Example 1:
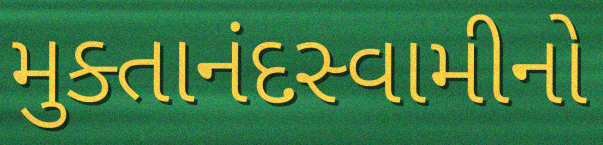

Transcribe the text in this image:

મુક્તાનંદસ્વામીનો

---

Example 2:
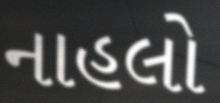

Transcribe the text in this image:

નાહલો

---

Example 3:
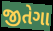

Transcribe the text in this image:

જીતેગા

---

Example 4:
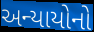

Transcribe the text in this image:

અન્યાયોનો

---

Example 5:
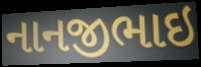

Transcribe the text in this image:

નાનજીભાઇ